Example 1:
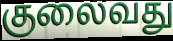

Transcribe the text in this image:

குலைவது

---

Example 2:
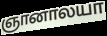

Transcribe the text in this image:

ஞானாலயா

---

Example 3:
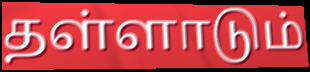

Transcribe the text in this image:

தள்ளாடும்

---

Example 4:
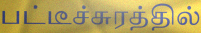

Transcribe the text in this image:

பட்டீச்சுரத்தில்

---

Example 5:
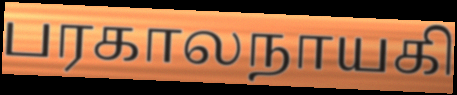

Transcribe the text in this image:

பரகாலநாயகி